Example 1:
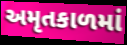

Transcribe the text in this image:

અમૃતકાળમાં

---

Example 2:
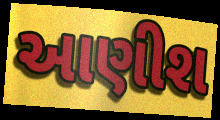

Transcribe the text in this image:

આણીશ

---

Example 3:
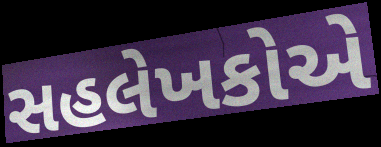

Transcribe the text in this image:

સહલેખકોએ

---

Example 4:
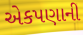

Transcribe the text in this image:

એકપણાની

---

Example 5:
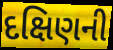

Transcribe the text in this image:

દક્ષિણની